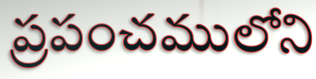
ప్రపంచములోని